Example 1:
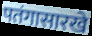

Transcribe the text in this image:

पतंगासारखे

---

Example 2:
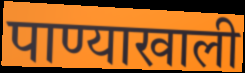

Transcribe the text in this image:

पाण्‍याखाली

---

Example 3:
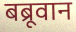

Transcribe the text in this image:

बब्रूवान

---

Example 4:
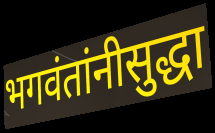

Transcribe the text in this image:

भगवंतांनीसुद्धा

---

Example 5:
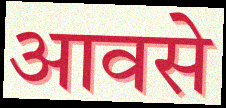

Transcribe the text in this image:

आवसे